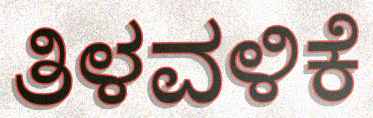
ತಿಳವಳಿಕೆ